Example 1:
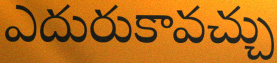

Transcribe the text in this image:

ఎదురుకావచ్చు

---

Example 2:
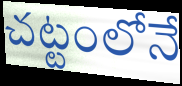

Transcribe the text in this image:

చట్టంలోనే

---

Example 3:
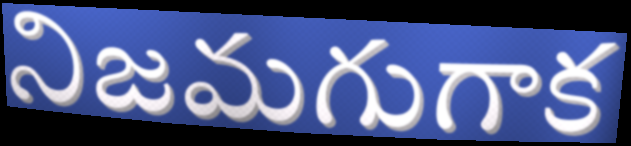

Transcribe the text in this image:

నిజమగుగాక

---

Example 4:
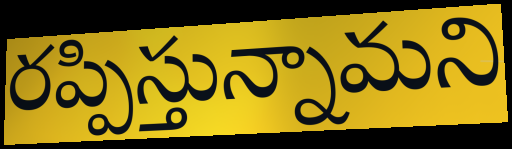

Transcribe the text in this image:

రప్పిస్తున్నామని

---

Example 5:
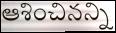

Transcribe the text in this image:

ఆశించినన్ని